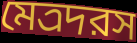
মেত্রদরস